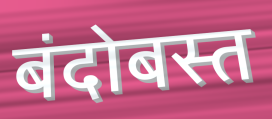
बंदोबस्त